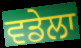
ਵਡੇਲਾ